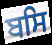
ਬਸਿ